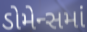
ડોમેન્સમાં